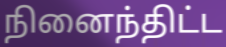
நினைந்திட்ட